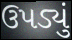
ઉપડ્યું